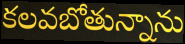
కలవబోతున్నాను